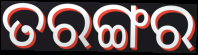
ତରଙ୍ଗର